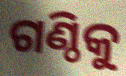
ଗଣ୍ଠିକୁ